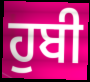
ਹੁਬੀ